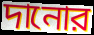
দানোর